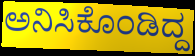
ಅನಿಸಿಕೊಂಡಿದ್ದ